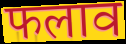
फलाव